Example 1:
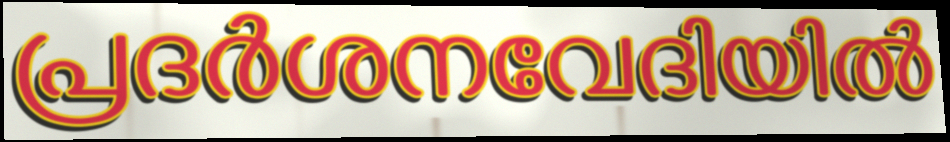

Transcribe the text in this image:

പ്രദർശനവേദിയിൽ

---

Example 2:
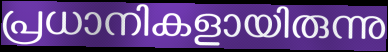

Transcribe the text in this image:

പ്രധാനികളായിരുന്നു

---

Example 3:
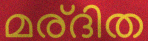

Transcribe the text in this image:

മര്ദിത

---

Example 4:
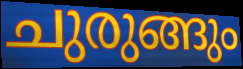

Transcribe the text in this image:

ചുരുങ്ങും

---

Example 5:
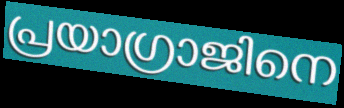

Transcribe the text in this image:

പ്രയാഗ്രാജിനെ